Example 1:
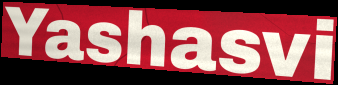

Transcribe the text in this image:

Yashasvi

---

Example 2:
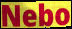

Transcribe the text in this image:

Nebo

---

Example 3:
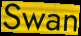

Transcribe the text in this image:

Swan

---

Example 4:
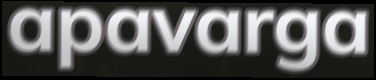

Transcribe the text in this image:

apavarga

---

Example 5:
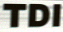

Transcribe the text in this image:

TDI